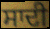
ਸਾਦੀ